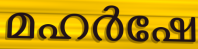
മഹർഷേ